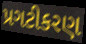
પ્રગટીકરણ